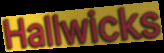
Hallwicks